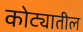
कोट्यातील